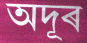
অদূৰ